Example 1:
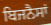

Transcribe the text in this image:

ਬਿਜਨੈਸਾਂ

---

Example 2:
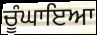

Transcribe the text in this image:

ਚੂੰਘਾਇਆ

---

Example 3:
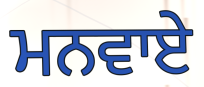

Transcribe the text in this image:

ਮਨਵਾਏ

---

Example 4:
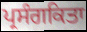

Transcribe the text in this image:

ਪ੍ਰਸੰਗਕਿਤਾ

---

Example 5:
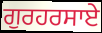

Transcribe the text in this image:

ਗੁਰਹਰਸਾਏ